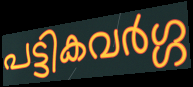
പട്ടികവർഗ്ഗ